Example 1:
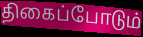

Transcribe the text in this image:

திகைப்போடும்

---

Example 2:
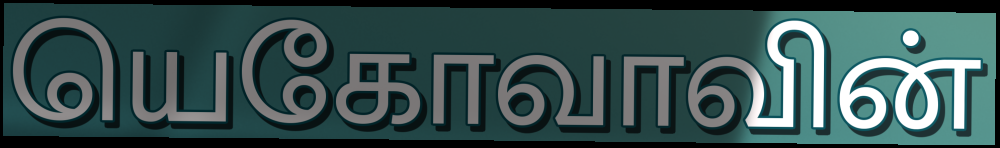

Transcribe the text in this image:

யெகோவாவின்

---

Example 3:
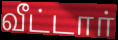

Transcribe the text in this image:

வீட்டார்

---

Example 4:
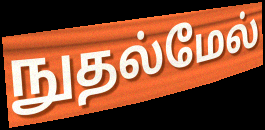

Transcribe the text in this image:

நுதல்மேல்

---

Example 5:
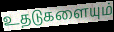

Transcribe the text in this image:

உதடுகளையும்